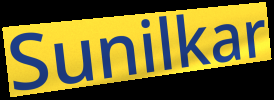
Sunilkar